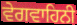
ਵੇਗਵਾਹਿਨੀ